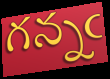
గన్నఁ